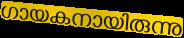
ഗായകനായിരുന്നു